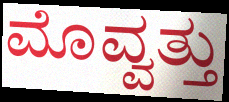
ಮೊವ್ವತ್ತು